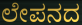
ಲೇಪನದ